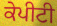
ਕੇਪੀਟੀ